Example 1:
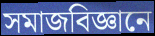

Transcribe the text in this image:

সমাজবিজ্ঞানে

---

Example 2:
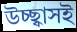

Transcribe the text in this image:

উচ্ছ্বাসই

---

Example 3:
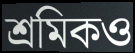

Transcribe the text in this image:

শ্রমিকও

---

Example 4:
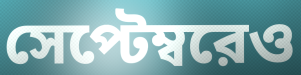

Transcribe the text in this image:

সেপ্টেম্বরেও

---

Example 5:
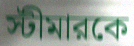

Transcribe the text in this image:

স্টীমারকে